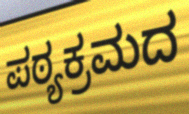
ಪಠ್ಯಕ್ರಮದ